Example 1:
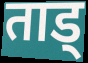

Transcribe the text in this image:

ताड्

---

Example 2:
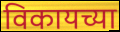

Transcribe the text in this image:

विकायच्या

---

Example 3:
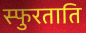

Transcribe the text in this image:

स्फुरताति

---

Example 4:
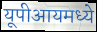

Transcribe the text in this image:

यूपीआयमध्ये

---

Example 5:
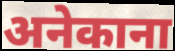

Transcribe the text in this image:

अनेकाना